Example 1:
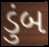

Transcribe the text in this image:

ડુંબ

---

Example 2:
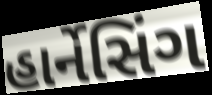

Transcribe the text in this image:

હાર્નેસિંગ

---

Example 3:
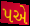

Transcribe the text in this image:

પએ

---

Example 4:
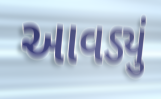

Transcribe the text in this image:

આવડ્યું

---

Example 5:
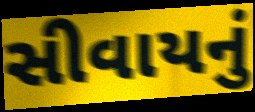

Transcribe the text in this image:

સીવાયનું